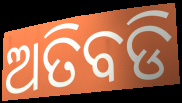
ଅତିବଡି